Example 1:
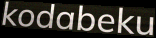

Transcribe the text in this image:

kodabeku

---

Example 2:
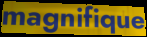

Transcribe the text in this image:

magnifique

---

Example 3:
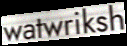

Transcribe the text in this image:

watwriksh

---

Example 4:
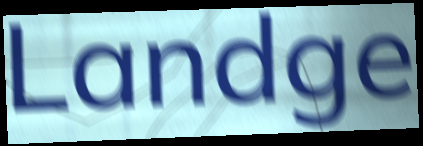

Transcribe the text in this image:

Landge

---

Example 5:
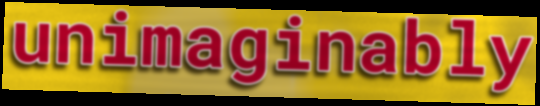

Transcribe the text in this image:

unimaginably